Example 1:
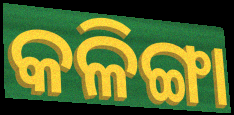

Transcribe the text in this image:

କଳିଙ୍ଗା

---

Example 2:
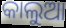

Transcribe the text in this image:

କାଲୁଆ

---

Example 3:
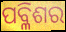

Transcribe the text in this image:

ପବ୍ଳିଶର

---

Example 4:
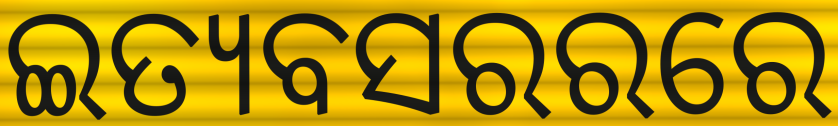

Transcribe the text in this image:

ଇତ୍ୟବସରରରେ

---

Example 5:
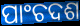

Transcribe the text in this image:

ପାଂଚଦଶ